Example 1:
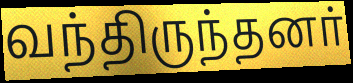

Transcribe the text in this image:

வந்திருந்தனர்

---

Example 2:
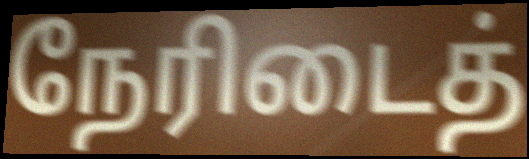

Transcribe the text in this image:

நேரிடைத்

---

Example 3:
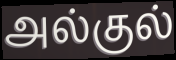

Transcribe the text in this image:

அல்குல்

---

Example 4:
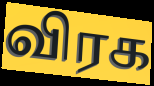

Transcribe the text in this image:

விரக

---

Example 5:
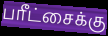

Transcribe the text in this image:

பரீட்சைக்கு